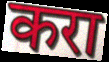
करा